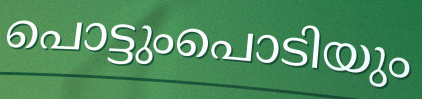
പൊട്ടുംപൊടിയും